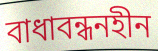
বাধাবন্ধনহীন